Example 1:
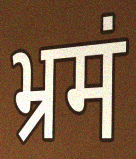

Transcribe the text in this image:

भ्रमं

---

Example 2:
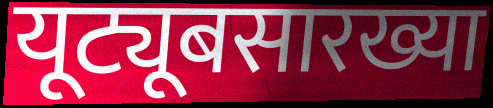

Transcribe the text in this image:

यूट्यूबसारख्या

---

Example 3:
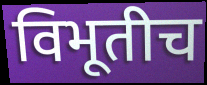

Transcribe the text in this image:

विभूतीच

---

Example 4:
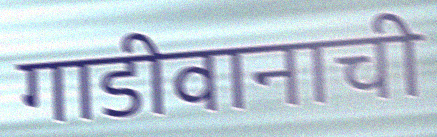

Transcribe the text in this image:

गाडीवानाची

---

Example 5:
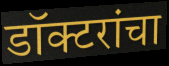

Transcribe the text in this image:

डॉक्टरांचा